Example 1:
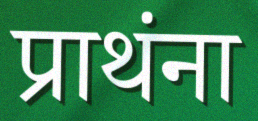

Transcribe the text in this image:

प्राथंना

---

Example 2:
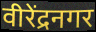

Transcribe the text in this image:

वीरेंद्रनगर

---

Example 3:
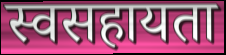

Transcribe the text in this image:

स्वसहायता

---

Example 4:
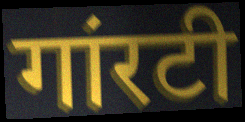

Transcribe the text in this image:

गांरटी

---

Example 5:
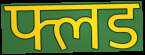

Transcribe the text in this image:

फ्लड